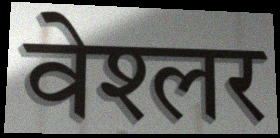
वेश्लर